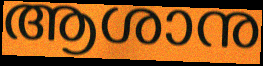
ആശാനു